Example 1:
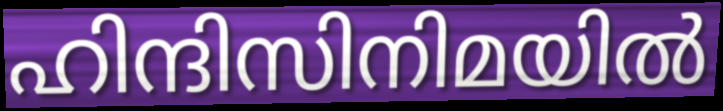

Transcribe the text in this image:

ഹിന്ദിസിനിമയിൽ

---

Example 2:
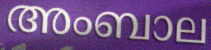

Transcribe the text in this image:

അംബാല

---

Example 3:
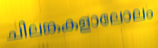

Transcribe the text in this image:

ചിലങ്കകളാലോലം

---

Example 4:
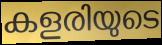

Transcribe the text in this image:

കളരിയുടെ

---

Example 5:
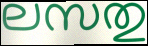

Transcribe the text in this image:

ലസതു